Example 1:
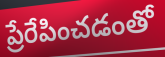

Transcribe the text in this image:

ప్రేరేపించడంతో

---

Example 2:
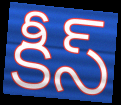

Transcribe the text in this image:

కీస్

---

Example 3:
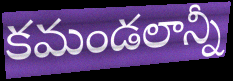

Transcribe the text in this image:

కమండలాన్నీ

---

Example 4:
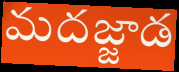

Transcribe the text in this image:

మదజ్జాడ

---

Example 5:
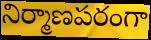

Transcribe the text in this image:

నిర్మాణపరంగా